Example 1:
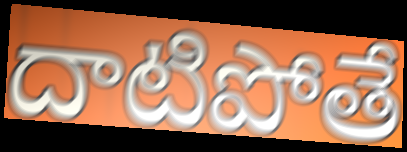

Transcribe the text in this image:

దాటిపోతే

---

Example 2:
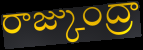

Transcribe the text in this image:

రాజ్కుంద్రా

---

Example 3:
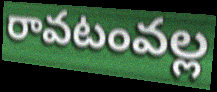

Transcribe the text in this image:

రావటంవల్ల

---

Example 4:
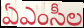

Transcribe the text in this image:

ఏఎంసీల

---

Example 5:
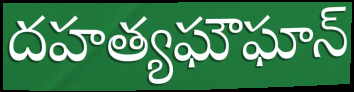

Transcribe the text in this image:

దహత్యఘౌఘాన్